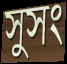
সুসং